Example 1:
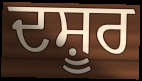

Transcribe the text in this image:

ਦਸ਼ੂਰ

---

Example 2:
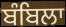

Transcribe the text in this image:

ਬੰਬਿਲਾ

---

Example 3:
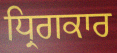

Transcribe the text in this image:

ਧ੍ਰਿਗਕਾਰ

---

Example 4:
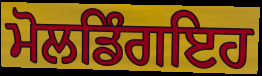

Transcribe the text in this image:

ਮੋਲਡਿੰਗਇਹ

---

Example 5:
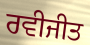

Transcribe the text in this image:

ਰਵੀਜੀਤ